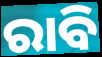
ରାବି